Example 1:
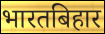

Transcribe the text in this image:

भारतबिहार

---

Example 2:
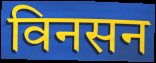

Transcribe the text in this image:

विनसन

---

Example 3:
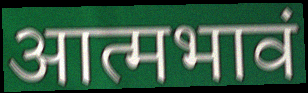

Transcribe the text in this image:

आत्मभावं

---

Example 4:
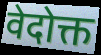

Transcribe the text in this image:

वेदोक्त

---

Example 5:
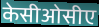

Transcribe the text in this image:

केसीओसीए